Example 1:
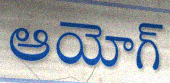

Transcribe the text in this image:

ఆయోగ్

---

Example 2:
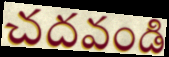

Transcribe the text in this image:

చదవండి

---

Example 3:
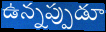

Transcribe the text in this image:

ఉన్నప్పుడూ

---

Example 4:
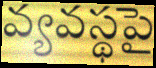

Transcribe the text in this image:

వ్యవస్థపై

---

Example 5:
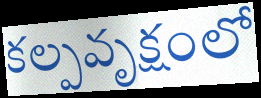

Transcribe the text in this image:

కల్పవృక్షంలో